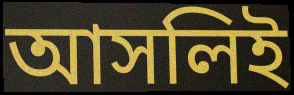
আসলিই